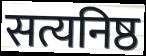
सत्यनिष्ठ